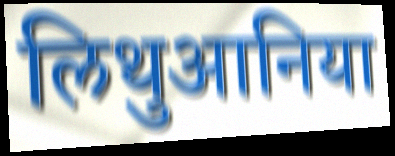
लिथुआनिया